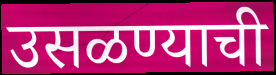
उसळण्याची